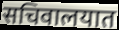
सचिवालयात